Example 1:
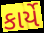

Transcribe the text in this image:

કાર્યે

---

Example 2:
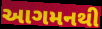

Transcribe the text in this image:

આગમનથી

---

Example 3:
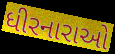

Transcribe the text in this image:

ધીરનારાઓ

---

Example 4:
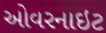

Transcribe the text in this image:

ઓવરનાઇટ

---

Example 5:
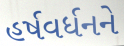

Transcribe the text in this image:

હર્ષવર્ધનને